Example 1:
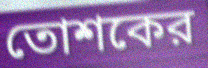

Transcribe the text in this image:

তোশকের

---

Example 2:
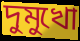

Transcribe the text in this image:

দুমুখো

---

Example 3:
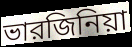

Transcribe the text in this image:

ভারজিনিয়া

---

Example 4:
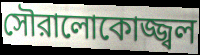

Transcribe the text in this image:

সৌরালোকোজ্জ্বল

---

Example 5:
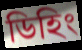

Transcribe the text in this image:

ডিহিং